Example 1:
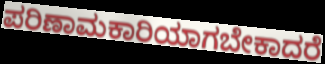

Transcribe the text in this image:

ಪರಿಣಾಮಕಾರಿಯಾಗಬೇಕಾದರೆ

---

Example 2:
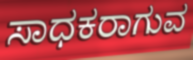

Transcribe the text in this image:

ಸಾಧಕರಾಗುವ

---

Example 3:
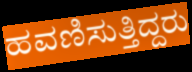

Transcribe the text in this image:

ಹವಣಿಸುತ್ತಿದ್ದರು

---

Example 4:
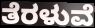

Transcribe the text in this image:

ತೆರಳುವೆ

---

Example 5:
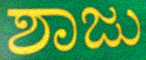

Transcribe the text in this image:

ಶಾಜು